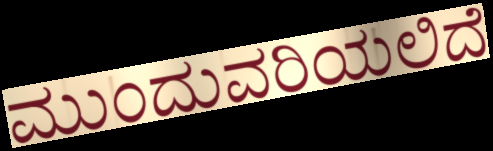
ಮುಂದುವರಿಯಲಿದೆ